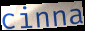
cinna